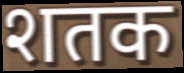
शतक